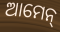
ଆମେନ୍